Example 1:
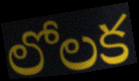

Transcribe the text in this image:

లోలక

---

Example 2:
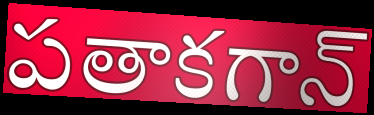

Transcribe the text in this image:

పతాకగాన్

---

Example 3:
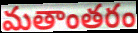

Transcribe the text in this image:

మతాంతరం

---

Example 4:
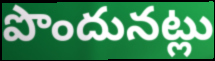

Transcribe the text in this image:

పొందునట్లు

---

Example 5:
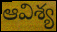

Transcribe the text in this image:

ఆవిశ్య